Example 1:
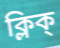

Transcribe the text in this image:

ক্লিক্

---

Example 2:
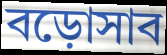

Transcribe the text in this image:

বড়োসাব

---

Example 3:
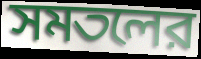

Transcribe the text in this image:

সমতলের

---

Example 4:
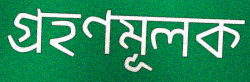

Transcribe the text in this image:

গ্রহণমূলক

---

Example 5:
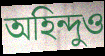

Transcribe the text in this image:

অহিন্দুও